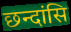
छन्दांसि